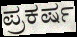
ಪ್ರಕರ್ಷ